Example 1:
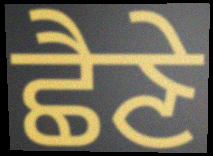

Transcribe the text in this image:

ਛੈਣੇ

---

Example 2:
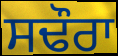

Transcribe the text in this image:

ਸਢੌਰਾ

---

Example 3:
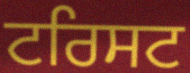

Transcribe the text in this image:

ਟਰਿਸਟ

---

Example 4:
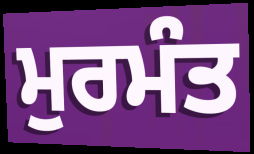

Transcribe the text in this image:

ਮੁਰਮੰਤ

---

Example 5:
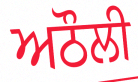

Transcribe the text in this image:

ਅਠੌਲੀ